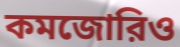
কমজোরিও